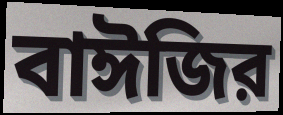
বাঈজির